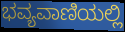
ಭವ್ಯವಾಣಿಯಲ್ಲಿ